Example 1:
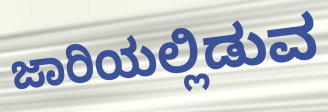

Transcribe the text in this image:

ಜಾರಿಯಲ್ಲಿಡುವ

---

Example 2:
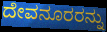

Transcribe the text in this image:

ದೇವನೂರರನ್ನು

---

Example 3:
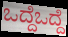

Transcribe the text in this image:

ಒದ್ದೆಒದ್ದೆ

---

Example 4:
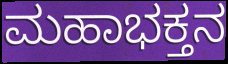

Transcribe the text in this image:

ಮಹಾಭಕ್ತನ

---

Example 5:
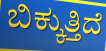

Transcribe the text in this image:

ಬಿಕ್ಕುತ್ತಿದೆ